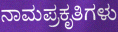
ನಾಮಪ್ರಕೃತಿಗಳು